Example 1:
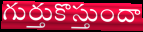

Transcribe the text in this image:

గుర్తుకొస్తుందా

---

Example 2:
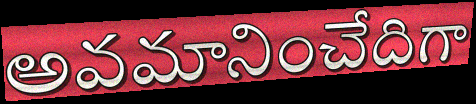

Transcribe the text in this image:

అవమానించేదిగా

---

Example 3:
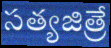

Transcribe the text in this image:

సత్యజిత్రే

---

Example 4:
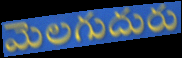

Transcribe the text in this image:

మెలగుదురు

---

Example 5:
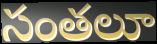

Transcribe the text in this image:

సంతలూ